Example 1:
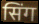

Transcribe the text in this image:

सिंग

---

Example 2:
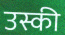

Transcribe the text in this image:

उस्‍की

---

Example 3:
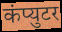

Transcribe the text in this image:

कंप्युटर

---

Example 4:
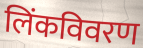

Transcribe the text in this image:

लिंकविवरण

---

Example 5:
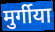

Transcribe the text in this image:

मुर्गीया